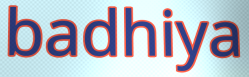
badhiya